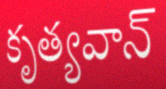
కృత్యవాన్